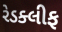
રેડક્લીફ